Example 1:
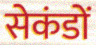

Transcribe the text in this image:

सेकंडों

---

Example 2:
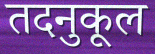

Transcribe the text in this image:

तदनुकूल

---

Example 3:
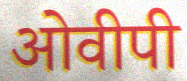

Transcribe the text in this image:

ओवीपी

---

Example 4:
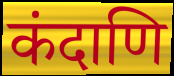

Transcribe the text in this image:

कंदाणि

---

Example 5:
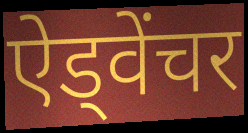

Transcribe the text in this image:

ऐड्वेंचर